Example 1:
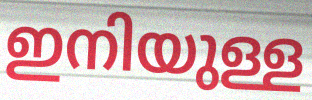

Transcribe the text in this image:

ഇനിയുള്ള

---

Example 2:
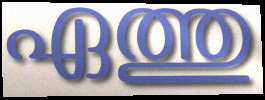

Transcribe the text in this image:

ഏത്തു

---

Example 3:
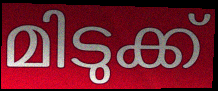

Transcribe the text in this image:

മിടുക്ക്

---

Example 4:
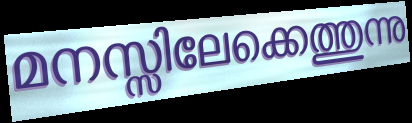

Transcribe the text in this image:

മനസ്സിലേക്കെത്തുന്നു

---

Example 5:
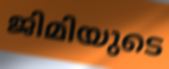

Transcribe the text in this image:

ജിമിയുടെ